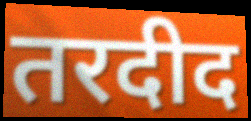
तरदीद